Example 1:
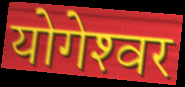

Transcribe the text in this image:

योगेश्‍वर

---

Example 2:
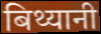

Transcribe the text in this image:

बिथ्यानी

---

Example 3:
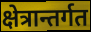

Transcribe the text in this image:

क्षेत्रान्तर्गत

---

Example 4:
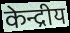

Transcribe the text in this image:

केन्‍द्रीय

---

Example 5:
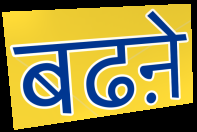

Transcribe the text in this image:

बढऩे